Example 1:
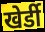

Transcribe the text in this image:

खेर्डी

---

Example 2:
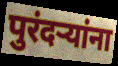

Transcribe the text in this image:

पुरंदऱ्यांना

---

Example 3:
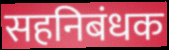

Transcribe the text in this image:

सहनिबंधक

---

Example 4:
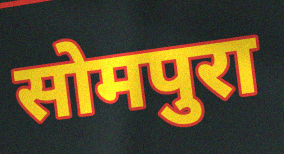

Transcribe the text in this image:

सोमपुरा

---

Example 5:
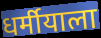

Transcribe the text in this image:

धर्मीयाला